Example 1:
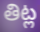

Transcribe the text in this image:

తిట్ల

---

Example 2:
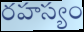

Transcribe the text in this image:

రహస్యం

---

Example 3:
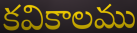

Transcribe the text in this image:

కవికాలము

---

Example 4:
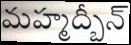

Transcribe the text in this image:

మహ్మద్బీన్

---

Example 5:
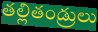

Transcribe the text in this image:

తల్లితండ్రులు